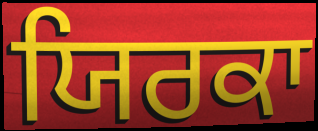
ਯਿਰਕਾ